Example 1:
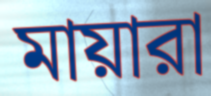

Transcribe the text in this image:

মায়ারা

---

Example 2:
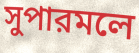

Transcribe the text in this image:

সুপারমলে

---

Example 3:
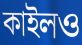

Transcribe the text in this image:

কাইলও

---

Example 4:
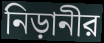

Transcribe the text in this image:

নিড়ানীর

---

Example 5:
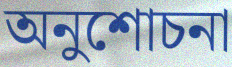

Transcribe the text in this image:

অনুশোচনা